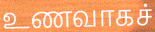
உணவாகச்